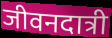
जीवनदात्री